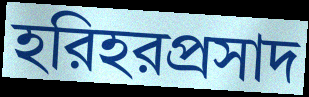
হরিহরপ্রসাদ